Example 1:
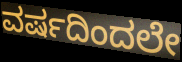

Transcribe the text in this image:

ವರ್ಷದಿಂದಲೇ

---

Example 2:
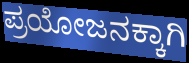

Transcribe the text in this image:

ಪ್ರಯೋಜನಕ್ಕಾಗಿ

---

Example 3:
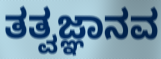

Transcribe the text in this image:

ತತ್ವಜ್ಞಾನವ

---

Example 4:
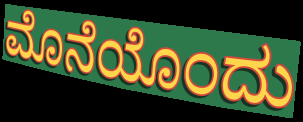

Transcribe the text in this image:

ಮೊನೆಯೊಂದು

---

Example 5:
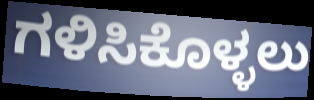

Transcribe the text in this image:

ಗಳಿಸಿಕೊಳ್ಳಲು